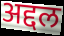
अद्दल